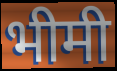
भीमी